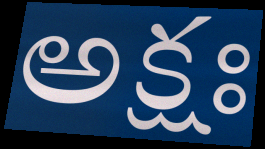
అక్షః